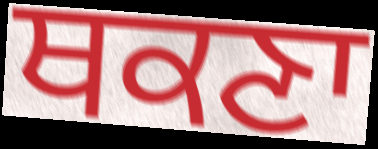
ਥਕਣਾ